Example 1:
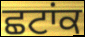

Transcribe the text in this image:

ਛਟਾਂਕ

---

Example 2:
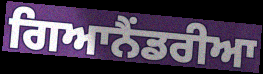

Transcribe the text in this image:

ਗਿਆਨੈਂਡਰੀਆ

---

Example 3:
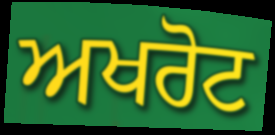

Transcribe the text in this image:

ਅਖਰੋਟ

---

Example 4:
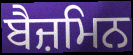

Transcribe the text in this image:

ਬੈਜ਼ਮਿਨ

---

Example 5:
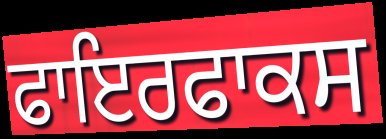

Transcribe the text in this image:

ਫਾਇਰਫਾਕਸ